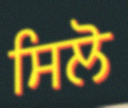
ਸਿਲੋ